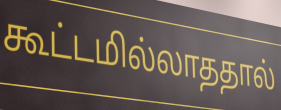
கூட்டமில்லாததால்